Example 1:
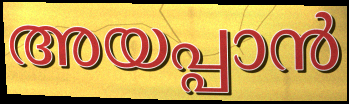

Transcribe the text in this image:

അയപ്പാൻ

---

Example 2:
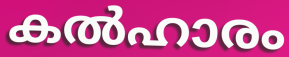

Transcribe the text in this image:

കൽഹാരം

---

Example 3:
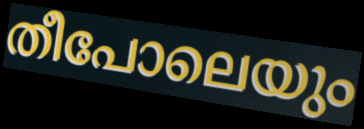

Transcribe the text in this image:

തീപോലെയും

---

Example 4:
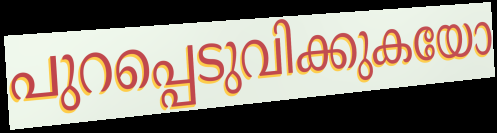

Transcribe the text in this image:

പുറപ്പെടുവിക്കുകയോ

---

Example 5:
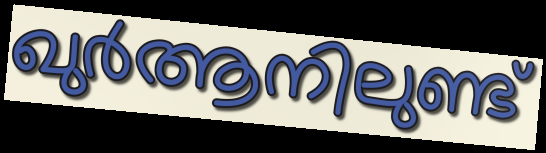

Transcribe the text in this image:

ഖുർആനിലുണ്ട്